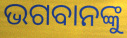
ଭଗବାନଙ୍କୁ